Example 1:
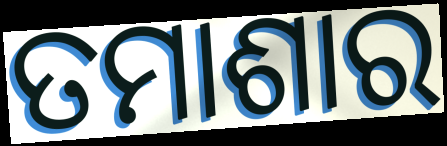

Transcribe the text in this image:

ତମାଶାର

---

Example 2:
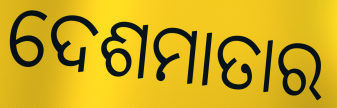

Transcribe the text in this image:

ଦେଶମାତାର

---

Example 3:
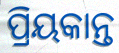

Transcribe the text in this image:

ପ୍ରିୟକାନ୍ତ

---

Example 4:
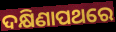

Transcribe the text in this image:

ଦକ୍ଷିଣାପଥରେ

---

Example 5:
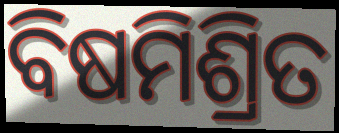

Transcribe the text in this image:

ବିଷମିଶ୍ରିତ